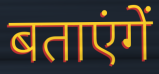
बताएंगें